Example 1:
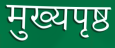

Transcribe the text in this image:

मुख्यपृष्ठ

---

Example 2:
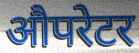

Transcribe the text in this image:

औपरेटर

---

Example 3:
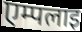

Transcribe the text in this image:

एम्पलाइ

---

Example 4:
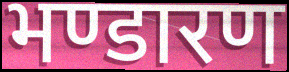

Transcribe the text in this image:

भण्डारण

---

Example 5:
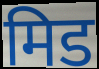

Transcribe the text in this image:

मिड